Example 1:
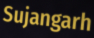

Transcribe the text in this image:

Sujangarh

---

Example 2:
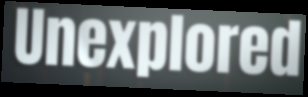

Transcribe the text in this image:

Unexplored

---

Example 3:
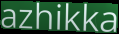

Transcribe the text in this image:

azhikka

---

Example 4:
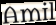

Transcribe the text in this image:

Amil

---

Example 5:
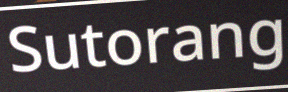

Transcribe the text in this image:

Sutorang